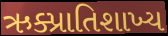
ઋક્પ્રાતિશાખ્ય